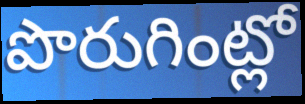
పొరుగింట్లో